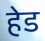
हेड